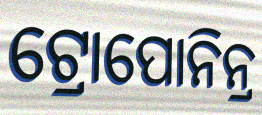
ଟ୍ରୋପୋନିନ୍ର